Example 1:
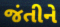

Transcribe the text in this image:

જંતીને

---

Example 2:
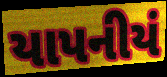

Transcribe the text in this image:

યાપનીયં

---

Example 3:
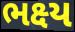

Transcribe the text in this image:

ભક્ષ્ય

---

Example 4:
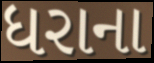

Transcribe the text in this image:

ધરાના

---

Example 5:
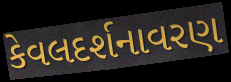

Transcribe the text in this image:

કેવલદર્શનાવરણ